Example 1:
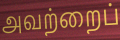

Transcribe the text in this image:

அவற்றைப்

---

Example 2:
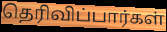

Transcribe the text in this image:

தெரிவிப்பார்கள்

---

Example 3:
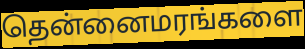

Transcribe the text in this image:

தென்னைமரங்களை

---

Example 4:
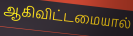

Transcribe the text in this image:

ஆகிவிட்டமையால்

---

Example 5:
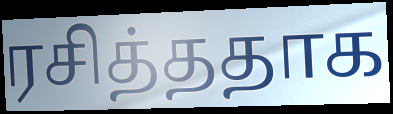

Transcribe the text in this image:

ரசித்ததாக